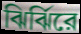
ঝির্ঝিরে